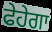
ਫੇਹੇਗਾ